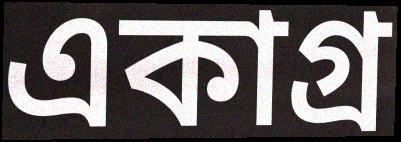
একাগ্র